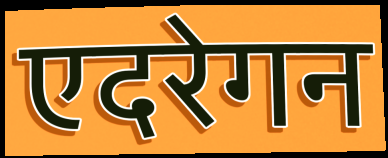
एदरेगन